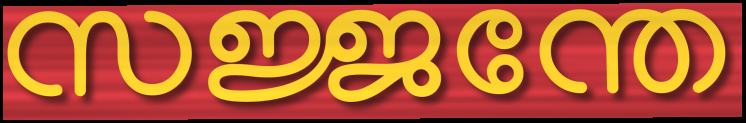
സജ്ജന്തേ